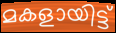
മകളായിട്ട്